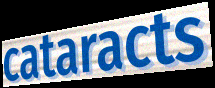
cataracts